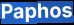
Paphos